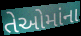
તેઓમાંના